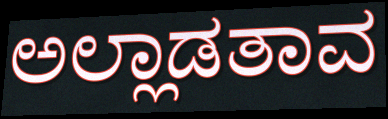
ಅಲ್ಲಾಡತಾವ